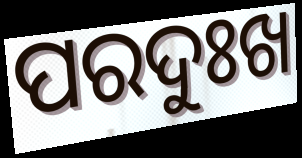
ପରଦୁଃଖ